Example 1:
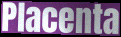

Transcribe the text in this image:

Placenta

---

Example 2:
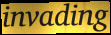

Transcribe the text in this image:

invading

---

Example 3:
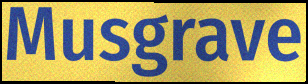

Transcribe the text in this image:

Musgrave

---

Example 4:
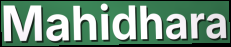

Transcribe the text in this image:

Mahidhara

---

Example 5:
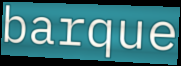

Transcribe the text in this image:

barque